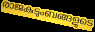
രാജകുടുംബങ്ങളുടെ